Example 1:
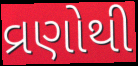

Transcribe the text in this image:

વ્રણોથી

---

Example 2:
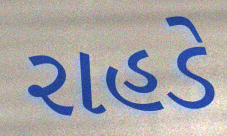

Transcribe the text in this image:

રાહડે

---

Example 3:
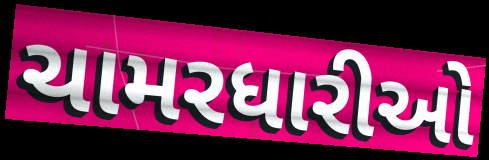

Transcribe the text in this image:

ચામરધારીઓ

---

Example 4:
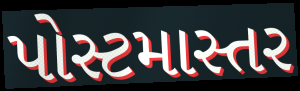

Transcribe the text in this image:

પોસ્ટમાસ્તર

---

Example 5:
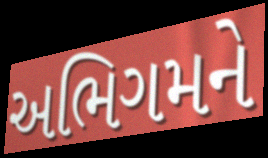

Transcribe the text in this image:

અભિગમને